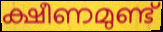
ക്ഷീണമുണ്ട്